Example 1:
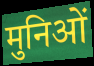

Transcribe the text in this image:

मुनिओं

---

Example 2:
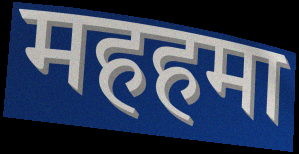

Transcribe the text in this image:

महहमा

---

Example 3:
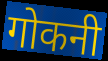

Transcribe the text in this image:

गोकनी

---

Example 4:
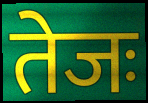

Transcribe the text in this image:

तेजः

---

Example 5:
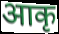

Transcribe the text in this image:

आकृ